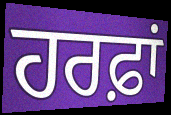
ਹਰਫ਼ਾਂ